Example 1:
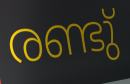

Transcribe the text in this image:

രണ്ടു്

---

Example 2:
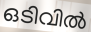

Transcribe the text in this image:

ഒടിവിൽ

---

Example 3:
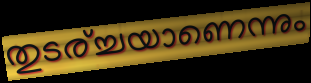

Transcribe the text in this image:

തുടര്ച്ചയാണെന്നും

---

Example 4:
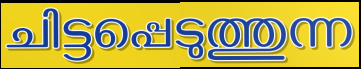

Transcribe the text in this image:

ചിട്ടപ്പെടുത്തുന്ന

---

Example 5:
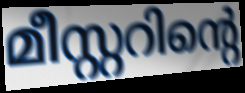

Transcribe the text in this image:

മീസ്റ്ററിന്റെ